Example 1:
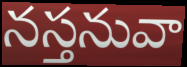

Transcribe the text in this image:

నస్తనువా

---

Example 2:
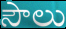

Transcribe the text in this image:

సౌలు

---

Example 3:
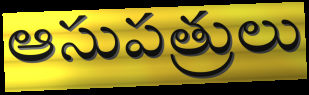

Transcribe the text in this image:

ఆసుపత్రులు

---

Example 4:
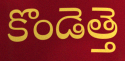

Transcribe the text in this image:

కొండెత్తె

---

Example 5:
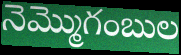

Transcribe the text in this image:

నెమ్మొగంబుల